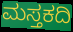
ಮಸ್ತಕದಿ